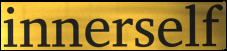
innerself